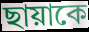
ছায়াকে